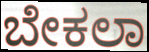
ಬೇಕಲಾ